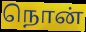
நொன்